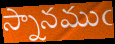
స్నానముఁ